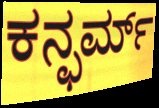
ಕನ್ಫರ್ಮ್